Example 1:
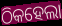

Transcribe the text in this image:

ଠିକହେଲା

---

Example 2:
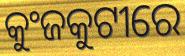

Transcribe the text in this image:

କୁଂଜକୁଟୀରେ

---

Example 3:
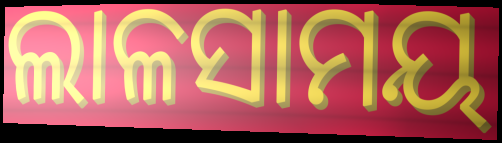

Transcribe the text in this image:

ଲାଳସାମୟ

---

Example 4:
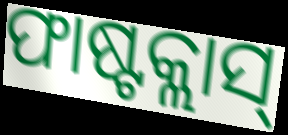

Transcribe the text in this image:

ଫାଷ୍ଟକ୍ଲାସ୍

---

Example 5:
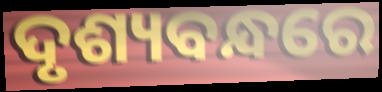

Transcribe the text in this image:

ଦୃଶ୍ୟବନ୍ଧରେ